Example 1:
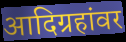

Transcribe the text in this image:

आदिग्रहांवर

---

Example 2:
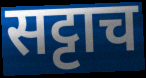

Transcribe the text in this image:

सट्टाच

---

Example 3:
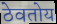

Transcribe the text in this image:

ठेवतोय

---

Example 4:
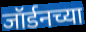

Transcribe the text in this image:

जॉर्डनच्या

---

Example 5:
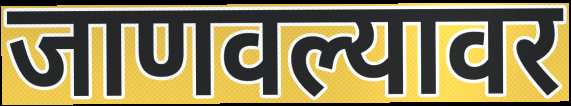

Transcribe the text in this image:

जाणवल्यावर